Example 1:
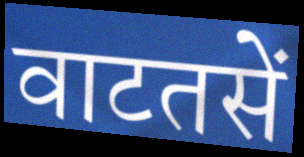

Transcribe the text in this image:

वाटतसें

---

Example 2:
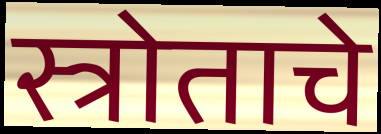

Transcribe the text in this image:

स्त्रोताचे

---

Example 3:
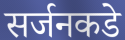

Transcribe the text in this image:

सर्जनकडे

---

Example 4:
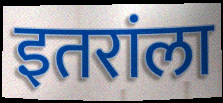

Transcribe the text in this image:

इतरांला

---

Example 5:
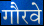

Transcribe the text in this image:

गौरवे